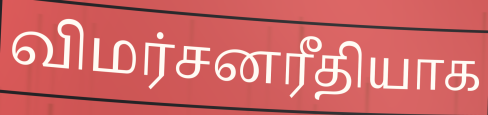
விமர்சனரீதியாக